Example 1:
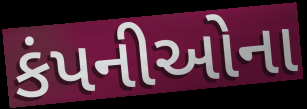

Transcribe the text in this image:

કંપનીઓના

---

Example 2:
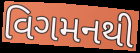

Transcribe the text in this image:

વિગમનથી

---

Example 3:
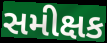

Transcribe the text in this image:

સમીક્ષક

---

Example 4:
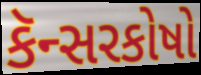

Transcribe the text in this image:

કૅન્સરકોષો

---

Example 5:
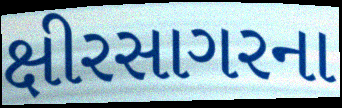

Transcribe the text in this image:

ક્ષીરસાગરના